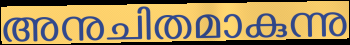
അനുചിതമാകുന്നു